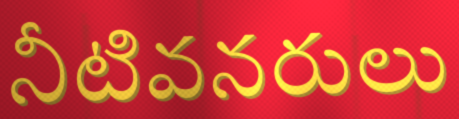
నీటివనరులు